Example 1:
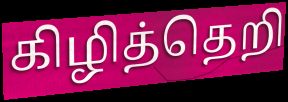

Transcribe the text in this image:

கிழித்தெறி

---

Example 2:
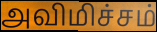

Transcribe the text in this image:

அவிமிச்சம்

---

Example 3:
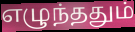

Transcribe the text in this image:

எழுந்ததும்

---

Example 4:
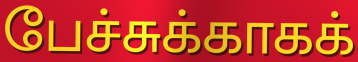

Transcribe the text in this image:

பேச்சுக்காகக்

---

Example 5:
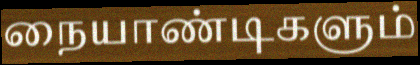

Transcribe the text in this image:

நையாண்டிகளும்